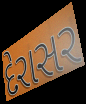
દેરાસર